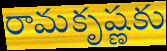
రామకృష్ణకు